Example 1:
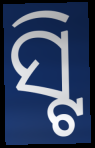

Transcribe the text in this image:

ସ୍ଟି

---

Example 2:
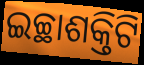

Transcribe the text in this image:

ଇଚ୍ଛାଶକ୍ତିଟି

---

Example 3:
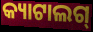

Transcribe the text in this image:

କ୍ୟାଟାଲଗ୍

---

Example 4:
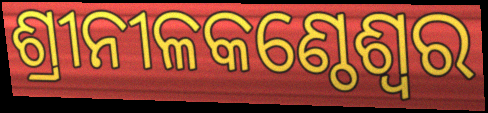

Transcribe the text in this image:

ଶ୍ରୀନୀଳକଣ୍ଠେଶ୍ଵର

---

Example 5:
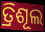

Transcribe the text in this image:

ତ୍ରିଶୂଲ